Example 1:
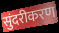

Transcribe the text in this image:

सुंदरीकरण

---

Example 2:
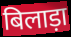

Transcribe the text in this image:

बिलाड़ा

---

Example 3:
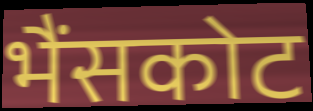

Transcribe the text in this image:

भैंसकोट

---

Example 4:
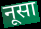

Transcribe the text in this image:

नूसा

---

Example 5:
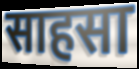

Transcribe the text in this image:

साहसा